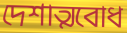
দেশাত্মবোধ